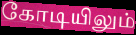
கோடியிலும்